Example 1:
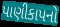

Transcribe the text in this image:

પાણીકાપનો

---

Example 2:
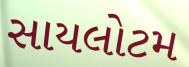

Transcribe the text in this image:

સાયલોટમ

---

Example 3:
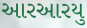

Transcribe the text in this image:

આરઆરયુ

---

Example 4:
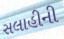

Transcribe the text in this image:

સલાહીની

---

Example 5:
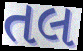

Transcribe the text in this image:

તલ